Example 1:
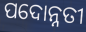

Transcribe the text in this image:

ପଦୋନ୍ନତୀ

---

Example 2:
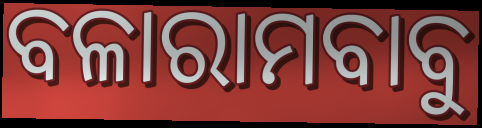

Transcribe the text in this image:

ବଳାରାମବାବୁ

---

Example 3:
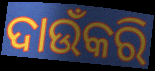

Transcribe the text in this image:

ଦାଉଁକରି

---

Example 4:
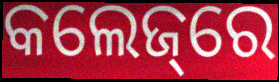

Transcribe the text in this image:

କଲେଜ୍‌ରେ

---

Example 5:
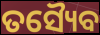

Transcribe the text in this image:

ତସ୍ୟୈବ